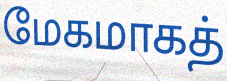
மேகமாகத்